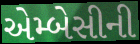
એમ્બેસીની